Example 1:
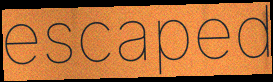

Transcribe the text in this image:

escaped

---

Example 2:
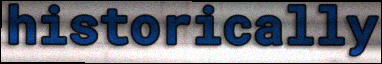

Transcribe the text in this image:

historically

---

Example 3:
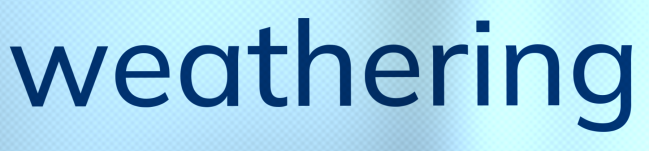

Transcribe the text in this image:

weathering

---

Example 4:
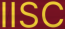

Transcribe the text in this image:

IISC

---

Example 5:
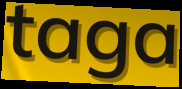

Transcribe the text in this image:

taga